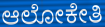
ಆಲೋಕೇತಿ